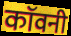
कॉवनी